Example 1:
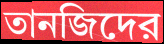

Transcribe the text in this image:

তানজিদের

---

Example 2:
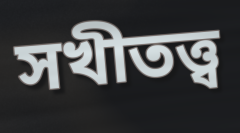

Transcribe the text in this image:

সখীতত্ত্ব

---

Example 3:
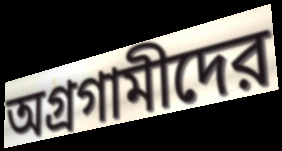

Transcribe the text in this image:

অগ্রগামীদের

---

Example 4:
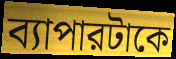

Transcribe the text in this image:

ব্যাপারটাকে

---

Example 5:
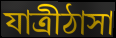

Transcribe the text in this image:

যাত্রীঠাসা